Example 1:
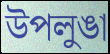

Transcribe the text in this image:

উপলুঙা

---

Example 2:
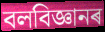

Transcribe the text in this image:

বলবিজ্ঞানৰ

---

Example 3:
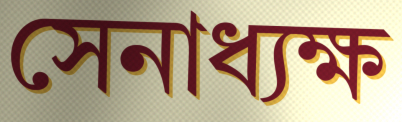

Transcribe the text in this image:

সেনাধ্যক্ষ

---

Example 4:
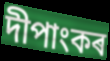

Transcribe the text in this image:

দীপাংকৰ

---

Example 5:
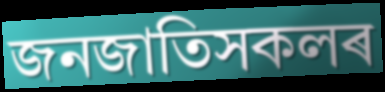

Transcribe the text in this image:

জনজাতিসকলৰ